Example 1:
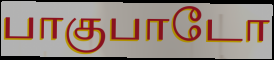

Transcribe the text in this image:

பாகுபாடோ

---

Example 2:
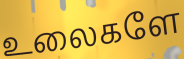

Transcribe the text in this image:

உலைகளே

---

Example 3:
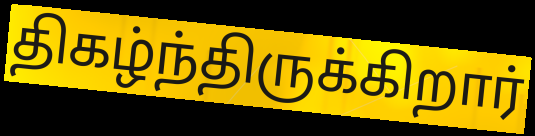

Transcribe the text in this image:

திகழ்ந்திருக்கிறார்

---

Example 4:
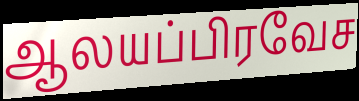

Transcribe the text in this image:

ஆலயப்பிரவேச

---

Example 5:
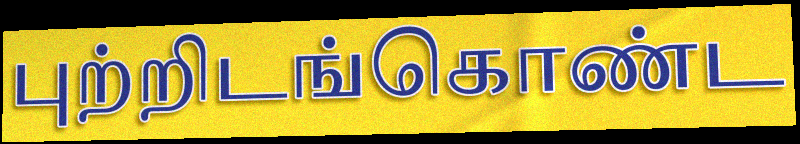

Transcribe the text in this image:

புற்றிடங்கொண்ட